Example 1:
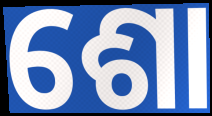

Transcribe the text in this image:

ଶୋ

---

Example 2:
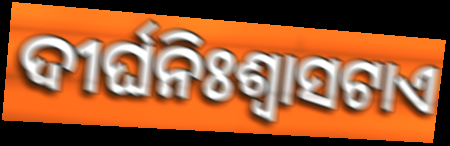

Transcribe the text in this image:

ଦୀର୍ଘନିଃଶ୍ୱାସଟାଏ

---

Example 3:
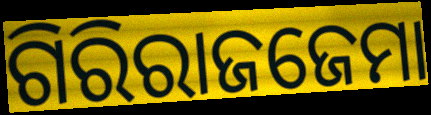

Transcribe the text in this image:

ଗିରିରାଜଜେମା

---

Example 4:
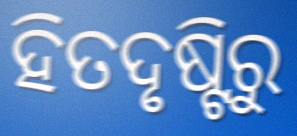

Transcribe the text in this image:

ହିତଦୃଷ୍ଟିରୁ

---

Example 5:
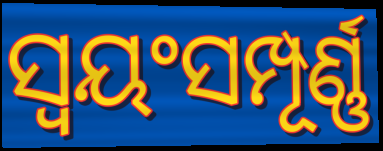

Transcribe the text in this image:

ସ୍ବୟଂସମ୍ପୂର୍ଣ୍ଣ